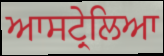
ਆਸਟ੍ਰੇਲਿਆ